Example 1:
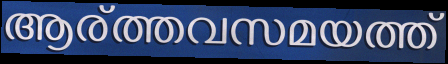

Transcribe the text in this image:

ആര്ത്തവസമയത്ത്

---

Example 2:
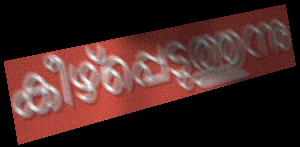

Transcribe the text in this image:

കീഴ്പ്പെടുത്തുന്നു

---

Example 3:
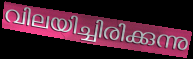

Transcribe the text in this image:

വിലയിച്ചിരിക്കുന്നു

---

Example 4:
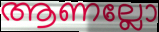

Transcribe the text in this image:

ആണല്ലോ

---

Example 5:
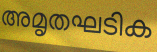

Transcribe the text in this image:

അമൃതഘടിക